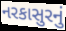
નરકાસુરનું